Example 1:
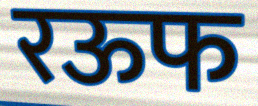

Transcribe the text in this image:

रऊफ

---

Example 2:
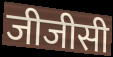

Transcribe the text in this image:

जीजीसी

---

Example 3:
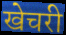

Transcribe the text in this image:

खेचरी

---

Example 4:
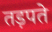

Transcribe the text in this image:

तड़पते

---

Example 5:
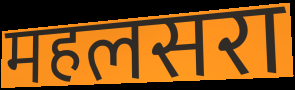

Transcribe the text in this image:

महलसरा